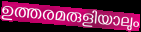
ഉത്തരമരുളിയാലും